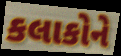
કલાકોને